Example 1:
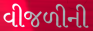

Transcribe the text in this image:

વીજળીની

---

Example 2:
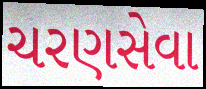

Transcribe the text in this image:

ચરણસેવા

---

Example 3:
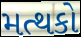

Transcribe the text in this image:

મત્થકો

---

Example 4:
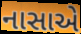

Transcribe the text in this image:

નાસાએ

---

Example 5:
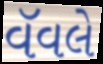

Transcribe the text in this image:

વૅવલે